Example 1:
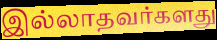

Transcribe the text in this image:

இல்லாதவர்களது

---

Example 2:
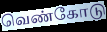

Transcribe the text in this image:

வெண்கோடு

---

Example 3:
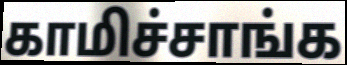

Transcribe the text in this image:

காமிச்சாங்க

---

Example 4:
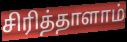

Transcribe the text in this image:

சிரித்தாளாம்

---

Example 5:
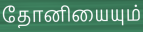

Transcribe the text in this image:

தோனியையும்